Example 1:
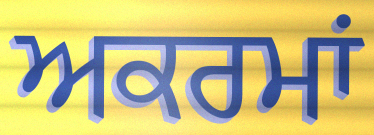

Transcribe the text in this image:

ਅਕਰਮਾਂ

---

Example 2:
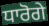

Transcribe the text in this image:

ਧਾਰੋਗੇ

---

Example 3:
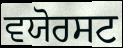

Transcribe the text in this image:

ਵਯੋਰਸਟ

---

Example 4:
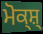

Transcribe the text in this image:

ਮੋਕ੍ਸ਼੍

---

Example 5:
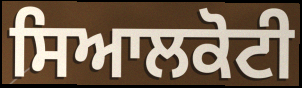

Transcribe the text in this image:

ਸਿਆਲਕੋਟੀ